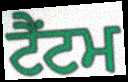
ਟੈਂਟਮ